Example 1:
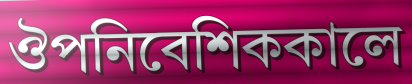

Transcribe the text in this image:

ঔপনিবেশিককালে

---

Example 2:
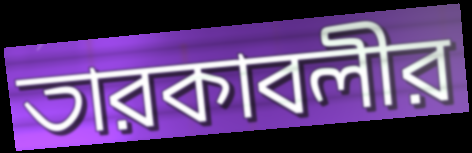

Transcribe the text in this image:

তারকাবলীর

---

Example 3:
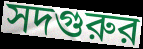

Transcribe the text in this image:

সদগুরুর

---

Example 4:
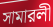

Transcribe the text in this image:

সামারলী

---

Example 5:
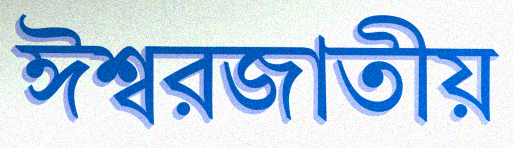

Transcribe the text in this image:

ঈশ্বরজাতীয়